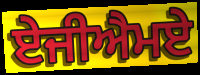
ਏਜੀਐਮਏ